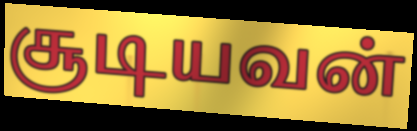
சூடியவன்